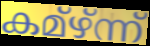
കമ്ഴ്ന്ന്